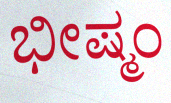
ಭೀಷ್ಮಂ